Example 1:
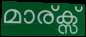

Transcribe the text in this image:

മാര്ക്സ്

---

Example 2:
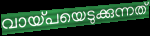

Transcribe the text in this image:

വായ്പയെടുക്കുന്നത്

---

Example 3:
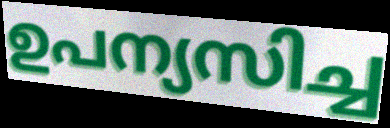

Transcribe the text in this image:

ഉപന്യസിച്ച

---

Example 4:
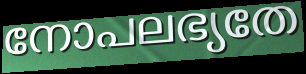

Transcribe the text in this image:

നോപലഭ്യതേ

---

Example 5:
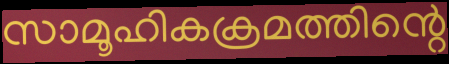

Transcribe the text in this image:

സാമൂഹികക്രമത്തിന്റെ